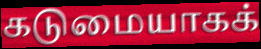
கடுமையாகக்